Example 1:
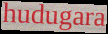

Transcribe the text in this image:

hudugara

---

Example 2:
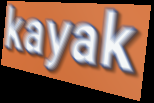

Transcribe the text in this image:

kayak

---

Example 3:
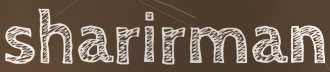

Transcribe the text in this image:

sharirman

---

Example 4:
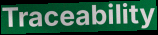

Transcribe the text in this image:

Traceability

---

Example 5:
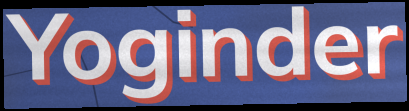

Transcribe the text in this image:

Yoginder